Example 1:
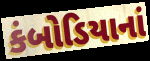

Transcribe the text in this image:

કંબોડિયાનાં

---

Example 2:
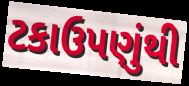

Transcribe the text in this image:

ટકાઉપણુંથી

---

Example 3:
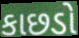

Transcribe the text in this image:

કાછડો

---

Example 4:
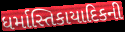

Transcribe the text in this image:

ધર્માસ્તિકાયાદિકની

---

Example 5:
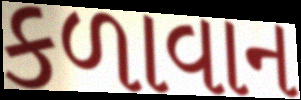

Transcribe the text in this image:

કળાવાન